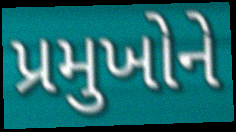
પ્રમુખોને